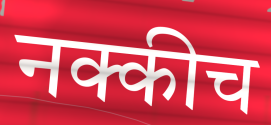
नक्कीच